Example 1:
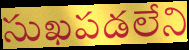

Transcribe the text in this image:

సుఖపడలేని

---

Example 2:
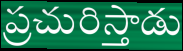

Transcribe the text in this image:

ప్రచురిస్తాడు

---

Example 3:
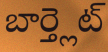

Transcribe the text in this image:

బార్త్లెట్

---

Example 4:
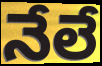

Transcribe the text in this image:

నేలే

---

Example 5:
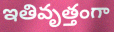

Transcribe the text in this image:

ఇతివృత్తంగా